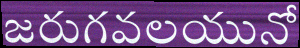
జరుగవలయునో